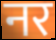
नर